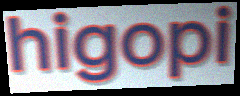
higopi